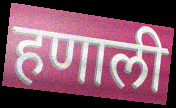
हणाली